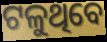
ଟଳୁଥିବେ